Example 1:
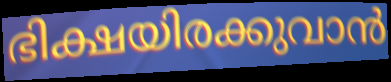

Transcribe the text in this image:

ഭിക്ഷയിരക്കുവാൻ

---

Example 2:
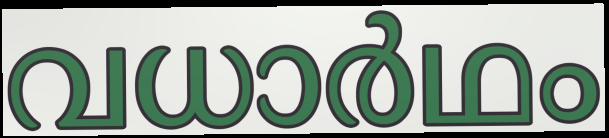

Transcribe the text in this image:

വധാർഥം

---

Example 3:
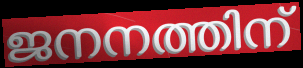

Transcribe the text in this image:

ജനനത്തിന്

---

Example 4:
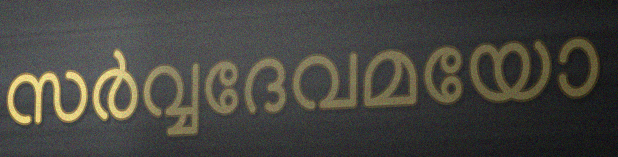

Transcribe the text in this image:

സർവ്വദേവമയോ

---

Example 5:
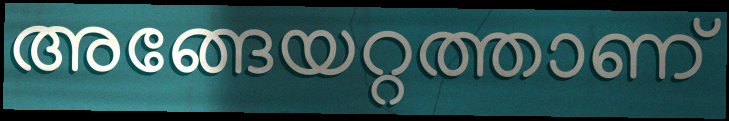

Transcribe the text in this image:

അങ്ങേയറ്റത്താണ്